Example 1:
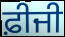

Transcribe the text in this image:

ਫ਼ੀਜੀ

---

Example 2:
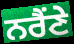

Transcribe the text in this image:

ਨਰੈਂਣੇ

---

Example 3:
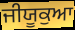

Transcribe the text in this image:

ਜੀਯੂਕੁਆ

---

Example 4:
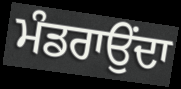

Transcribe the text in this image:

ਮੰਡਰਾਉਂਦਾ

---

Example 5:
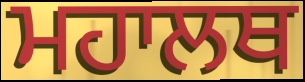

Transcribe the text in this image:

ਮਹਾਲਥ